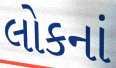
લોકનાં